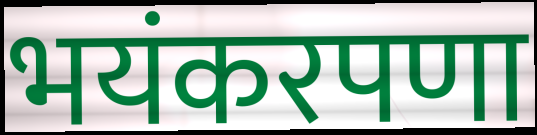
भयंकरपणा